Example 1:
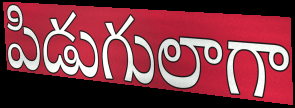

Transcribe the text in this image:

పిడుగులాగా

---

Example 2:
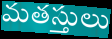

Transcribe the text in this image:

మతస్తులు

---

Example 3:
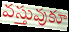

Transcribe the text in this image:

వస్తువుకూ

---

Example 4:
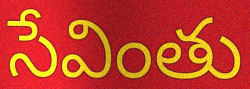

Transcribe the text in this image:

సేవింతు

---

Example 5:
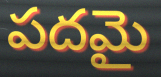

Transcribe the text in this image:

పదమై